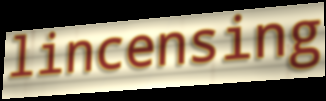
lincensing